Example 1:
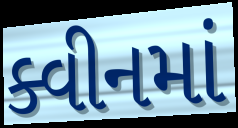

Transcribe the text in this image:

ક્વીનમાં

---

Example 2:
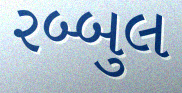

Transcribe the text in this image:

રબ્બુલ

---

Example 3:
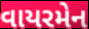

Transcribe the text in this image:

વાયરમેન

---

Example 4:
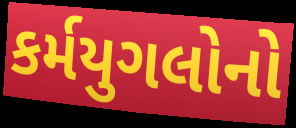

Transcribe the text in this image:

કર્મયુગલોનો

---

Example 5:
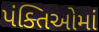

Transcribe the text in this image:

પંક્તિઓમાં